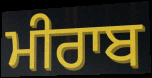
ਮੀਰਾਬ